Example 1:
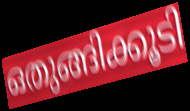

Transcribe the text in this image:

ഒതുങ്ങിക്കൂടി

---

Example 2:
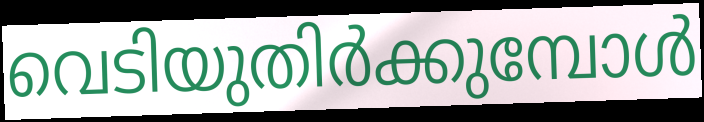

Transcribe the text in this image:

വെടിയുതിർക്കുമ്പോൾ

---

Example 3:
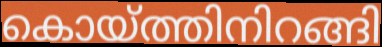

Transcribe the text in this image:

കൊയ്ത്തിനിറങ്ങി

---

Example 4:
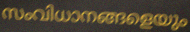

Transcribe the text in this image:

സംവിധാനങ്ങളെയും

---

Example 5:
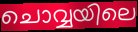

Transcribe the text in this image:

ചൊവ്വയിലെ